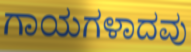
ಗಾಯಗಳಾದವು